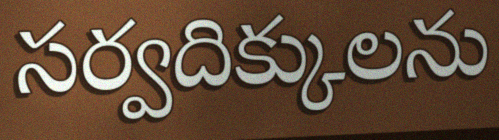
సర్వదిక్కులను